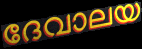
ദേവാലയ